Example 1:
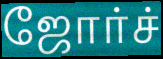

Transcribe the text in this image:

ஜோர்ச்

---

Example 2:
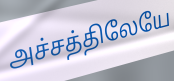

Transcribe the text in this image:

அச்சத்திலேயே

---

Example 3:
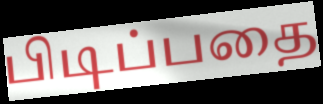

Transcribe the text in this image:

பிடிப்பதை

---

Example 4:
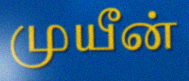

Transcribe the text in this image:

முயீன்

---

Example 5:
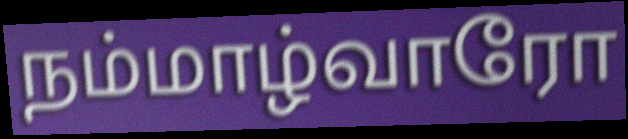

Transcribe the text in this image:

நம்மாழ்வாரோ